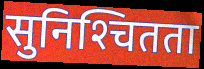
सुनिश्चितता